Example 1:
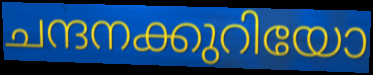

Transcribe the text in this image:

ചന്ദനക്കുറിയോ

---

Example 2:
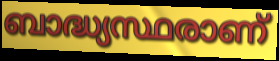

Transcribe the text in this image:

ബാദ്ധ്യസ്ഥരാണ്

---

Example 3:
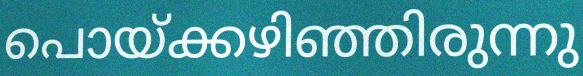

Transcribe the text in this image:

പൊയ്ക്കഴിഞ്ഞിരുന്നു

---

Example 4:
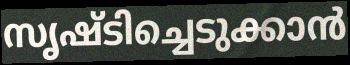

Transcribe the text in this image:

സൃഷ്ടിച്ചെടുക്കാൻ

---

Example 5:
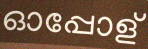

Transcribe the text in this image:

ഓപ്പോള്